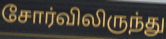
சோர்விலிருந்து